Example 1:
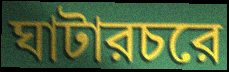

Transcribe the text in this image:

ঘাটারচরে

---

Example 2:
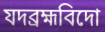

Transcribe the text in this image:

যদব্রহ্মবিদো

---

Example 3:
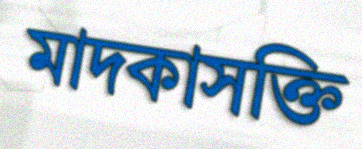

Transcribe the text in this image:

মাদকাসক্তি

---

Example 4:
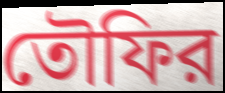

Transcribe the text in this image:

তৌফির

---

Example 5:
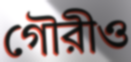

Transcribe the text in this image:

গৌরীও